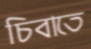
চিবাতে